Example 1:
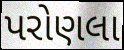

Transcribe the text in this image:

પરોણલા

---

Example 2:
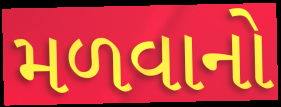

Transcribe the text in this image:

મળવાનો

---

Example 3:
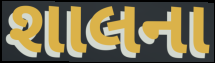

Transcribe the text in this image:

શાલના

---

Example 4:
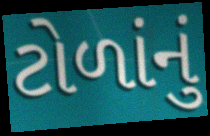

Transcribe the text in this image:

ટોળાંનું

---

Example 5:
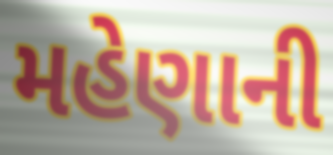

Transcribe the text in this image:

મહેણાની